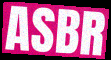
ASBR